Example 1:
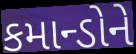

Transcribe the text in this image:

કમાન્ડોને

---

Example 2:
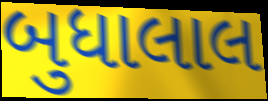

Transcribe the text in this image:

બુધાલાલ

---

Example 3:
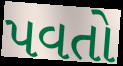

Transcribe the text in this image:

પવતો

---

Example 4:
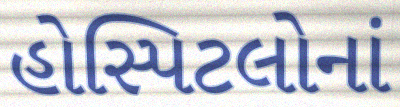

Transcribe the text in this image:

હોસ્પિટલોનાં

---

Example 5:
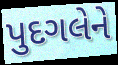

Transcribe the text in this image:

પુદગલેને